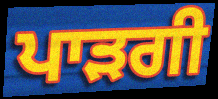
ਪਾੜਗੀ